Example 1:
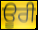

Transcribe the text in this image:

ਊਰੀ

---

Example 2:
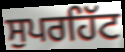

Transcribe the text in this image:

ਸੁਪਰਹਿੱਟ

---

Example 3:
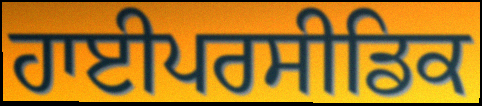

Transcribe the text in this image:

ਹਾਈਪਰਸੀਡਿਕ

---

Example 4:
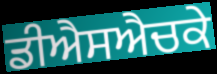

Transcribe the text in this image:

ਡੀਐਸਐਚਕੇ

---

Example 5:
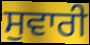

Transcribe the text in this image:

ਸੁਵਾਰੀ